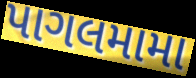
પાગલમામા